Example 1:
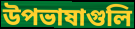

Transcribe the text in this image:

উপভাষাগুলি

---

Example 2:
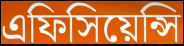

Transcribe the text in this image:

এফিসিয়েন্সি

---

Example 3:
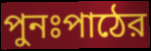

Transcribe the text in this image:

পুনঃপাঠের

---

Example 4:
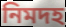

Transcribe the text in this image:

নিমদহ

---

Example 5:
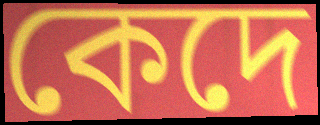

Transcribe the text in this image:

কেদে